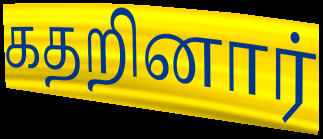
கதறினார்